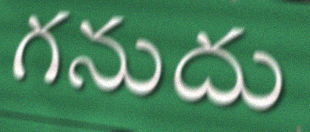
గనుదు